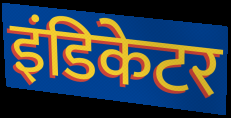
इंडिकेटर